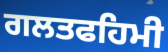
ਗਲਤਫਹਿਮੀ